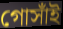
গোসাঁই